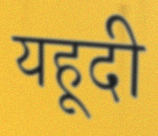
यहूदी